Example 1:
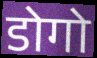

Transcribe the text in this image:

डोगो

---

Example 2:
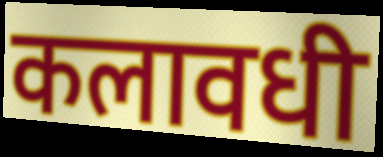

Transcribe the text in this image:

कलावधी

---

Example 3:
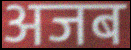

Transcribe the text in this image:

अजब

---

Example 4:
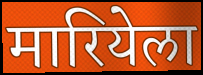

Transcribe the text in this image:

मारियेला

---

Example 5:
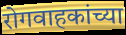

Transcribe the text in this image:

रोगवाहकांच्या